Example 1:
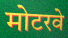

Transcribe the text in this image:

मोटरवे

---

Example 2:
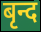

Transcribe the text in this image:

बृन्द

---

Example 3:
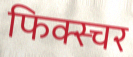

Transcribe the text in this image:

फिक्स्चर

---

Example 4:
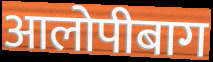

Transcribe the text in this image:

आलोपीबाग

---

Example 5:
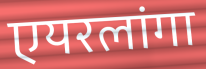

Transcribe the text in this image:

एयरलांगा